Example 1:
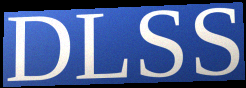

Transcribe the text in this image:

DLSS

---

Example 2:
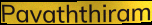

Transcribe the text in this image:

Pavaththiram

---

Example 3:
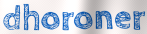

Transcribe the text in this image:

dhoroner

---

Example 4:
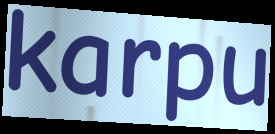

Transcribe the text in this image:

karpu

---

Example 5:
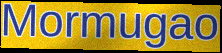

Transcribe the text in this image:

Mormugao